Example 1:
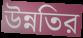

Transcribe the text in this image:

উন্নতির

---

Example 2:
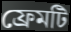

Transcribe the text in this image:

ফ্রেমটি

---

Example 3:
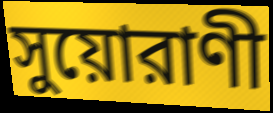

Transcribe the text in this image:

সুয়োরাণী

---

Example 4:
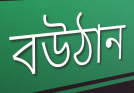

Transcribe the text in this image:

বউঠান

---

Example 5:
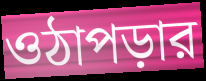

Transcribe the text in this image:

ওঠাপড়ার